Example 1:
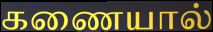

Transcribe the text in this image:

கணையால்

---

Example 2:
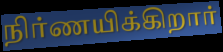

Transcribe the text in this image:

நிர்ணயிக்கிறார்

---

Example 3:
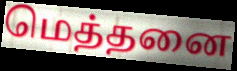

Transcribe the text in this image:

மெத்தனை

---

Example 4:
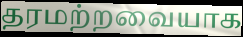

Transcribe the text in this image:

தரமற்றவையாக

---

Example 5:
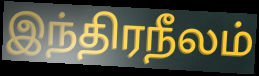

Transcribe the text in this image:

இந்திரநீலம்